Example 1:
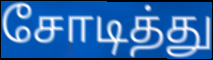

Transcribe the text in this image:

சோடித்து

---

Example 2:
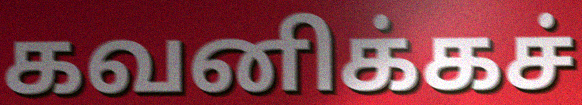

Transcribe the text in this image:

கவனிக்கச்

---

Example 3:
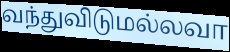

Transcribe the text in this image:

வந்துவிடுமல்லவா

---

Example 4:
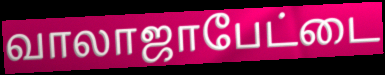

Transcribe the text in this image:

வாலாஜாபேட்டை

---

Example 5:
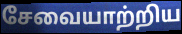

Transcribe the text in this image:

சேவையாற்றிய